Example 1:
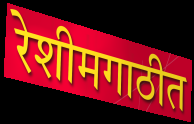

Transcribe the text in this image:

रेशीमगाठीत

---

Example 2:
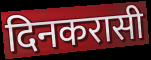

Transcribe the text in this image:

दिनकरासी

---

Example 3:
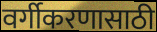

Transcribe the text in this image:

वर्गीकरणासाठी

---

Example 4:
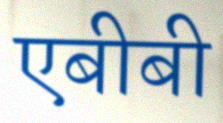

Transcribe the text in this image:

एबीबी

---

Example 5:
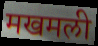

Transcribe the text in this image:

मखमली